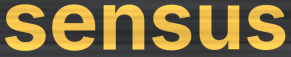
sensus